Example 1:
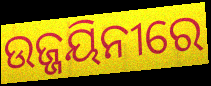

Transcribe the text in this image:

ଉଜ୍ଜୟିନୀରେ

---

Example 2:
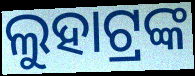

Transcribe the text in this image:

ଲୁହାଟ୍ରଙ୍କ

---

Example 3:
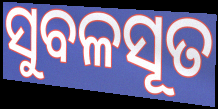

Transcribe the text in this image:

ସୁବଳସୂତ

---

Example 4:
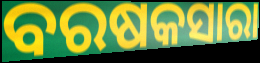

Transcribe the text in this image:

ବରଷକସାରା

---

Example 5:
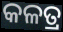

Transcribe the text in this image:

କଳତ୍ର